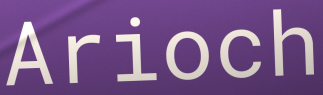
Arioch